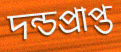
দন্ডপ্রাপ্ত